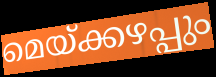
മെയ്ക്കഴപ്പും